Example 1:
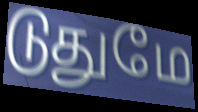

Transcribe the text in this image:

டுதுமே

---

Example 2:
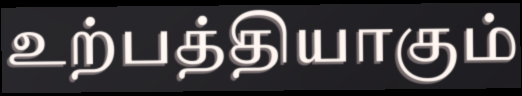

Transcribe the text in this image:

உற்பத்தியாகும்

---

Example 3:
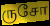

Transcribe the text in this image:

ருசோ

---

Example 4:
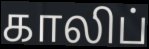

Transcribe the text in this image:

காலிப்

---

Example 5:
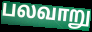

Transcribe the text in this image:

பலவாறு